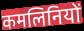
कमलिनियों